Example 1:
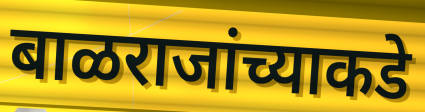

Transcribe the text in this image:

बाळराजांच्याकडे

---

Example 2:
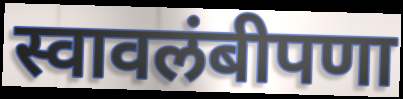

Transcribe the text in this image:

स्वावलंबीपणा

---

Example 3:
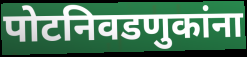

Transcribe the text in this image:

पोटनिवडणुकांना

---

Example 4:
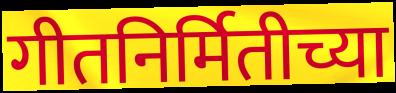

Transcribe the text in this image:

गीतनिर्मितीच्या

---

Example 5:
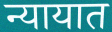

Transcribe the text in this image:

न्यायात